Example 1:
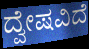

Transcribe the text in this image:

ದ್ವೇಷವಿದೆ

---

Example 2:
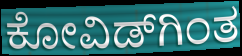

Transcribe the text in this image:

ಕೋವಿಡ್‌ಗಿಂತ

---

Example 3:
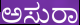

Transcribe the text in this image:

ಅಸುರಾ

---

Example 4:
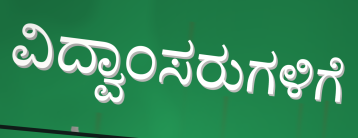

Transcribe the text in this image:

ವಿದ್ವಾಂಸರುಗಳಿಗೆ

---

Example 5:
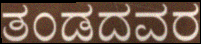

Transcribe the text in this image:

ತಂಡದವರ